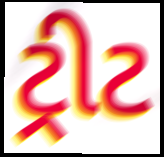
ટ્રીટ